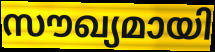
സൗഖ്യമായി